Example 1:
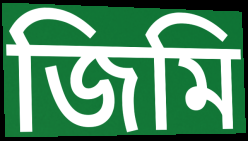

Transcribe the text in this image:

জিমি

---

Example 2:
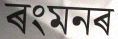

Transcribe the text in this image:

ৰংমনৰ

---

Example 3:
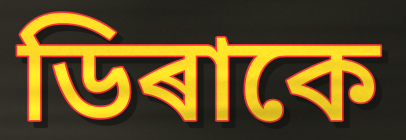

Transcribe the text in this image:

ডিৰাকে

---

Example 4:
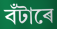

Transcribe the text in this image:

বঁটাৰে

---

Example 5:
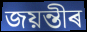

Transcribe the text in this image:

জয়ন্তীৰ